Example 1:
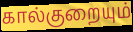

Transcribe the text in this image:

கால்குறையும்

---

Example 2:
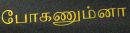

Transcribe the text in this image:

போகணும்னா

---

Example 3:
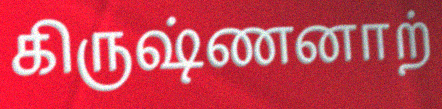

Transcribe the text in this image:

கிருஷ்ணனாற்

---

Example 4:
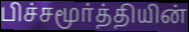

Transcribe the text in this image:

பிச்சமூர்த்தியின்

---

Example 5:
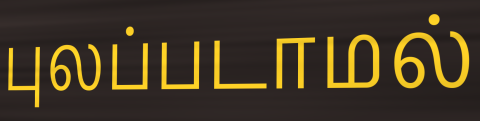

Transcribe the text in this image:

புலப்படாமல்